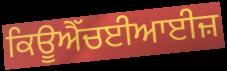
ਕਿਊਐੱਚਈਆਈਜ਼